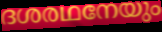
ദശരഥനേയും